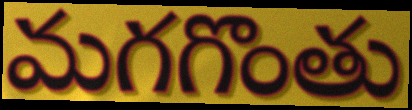
మగగొంతు